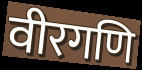
वीरगणि